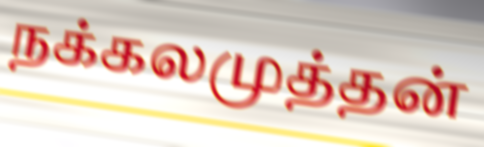
நக்கலமுத்தன்